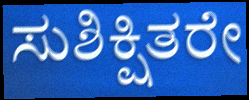
ಸುಶಿಕ್ಷಿತರೇ